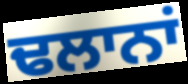
ਢਲਾਨਾਂ